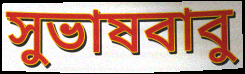
সুভাষবাবু